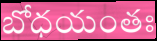
బోధయంతః